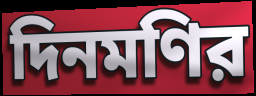
দিনমণির